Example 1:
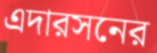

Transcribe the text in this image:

এদারসনের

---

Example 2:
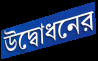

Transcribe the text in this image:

উদ্বোধনের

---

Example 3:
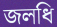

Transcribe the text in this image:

জলধি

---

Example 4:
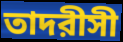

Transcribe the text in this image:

তাদরীসী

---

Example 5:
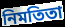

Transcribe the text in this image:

নিমতিতা